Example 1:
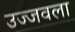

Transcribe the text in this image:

उज्जवला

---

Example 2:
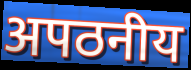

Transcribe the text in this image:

अपठनीय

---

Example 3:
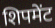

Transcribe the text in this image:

शिपमेंट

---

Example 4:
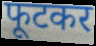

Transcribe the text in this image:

फूटकर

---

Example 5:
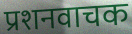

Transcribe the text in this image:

प्रशनवाचक